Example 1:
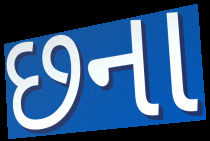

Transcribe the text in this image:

છના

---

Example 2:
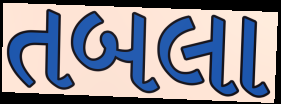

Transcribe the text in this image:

તબલા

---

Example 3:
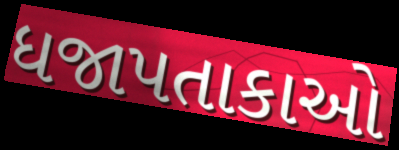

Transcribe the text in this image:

ધજાપતાકાઓ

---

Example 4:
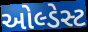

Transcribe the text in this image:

ઓલ્ડેસ્ટ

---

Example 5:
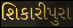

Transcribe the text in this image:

શિકારીપુરા